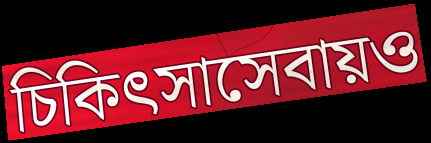
চিকিৎসাসেবায়ও